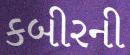
કબીરની